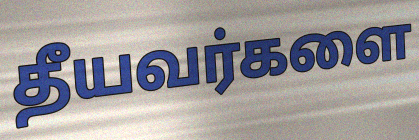
தீயவர்களை